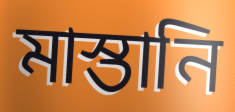
মাস্তানি